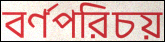
বর্ণপরিচয়